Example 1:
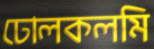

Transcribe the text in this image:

ঢোলকলমি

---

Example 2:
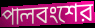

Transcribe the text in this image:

পালবংশের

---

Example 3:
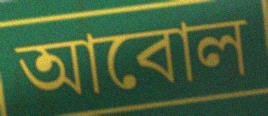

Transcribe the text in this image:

আবোল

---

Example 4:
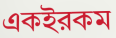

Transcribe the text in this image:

একইরকম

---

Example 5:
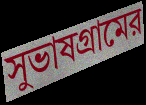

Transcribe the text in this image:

সুভাষগ্রামের